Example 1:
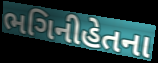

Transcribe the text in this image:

ભગિનીહેતના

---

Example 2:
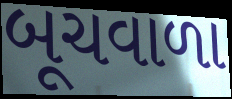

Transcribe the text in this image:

બૂચવાળા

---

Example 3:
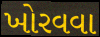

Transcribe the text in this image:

ખોરવવા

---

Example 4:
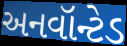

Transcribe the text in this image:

અનવૉન્ટેડ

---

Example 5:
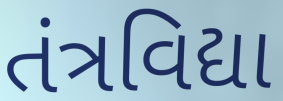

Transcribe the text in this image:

તંત્રવિદ્યા